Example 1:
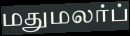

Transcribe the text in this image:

மதுமலர்ப்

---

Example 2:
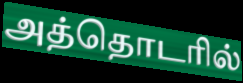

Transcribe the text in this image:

அத்தொடரில்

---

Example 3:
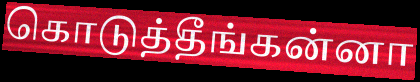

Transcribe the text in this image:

கொடுத்தீங்கன்னா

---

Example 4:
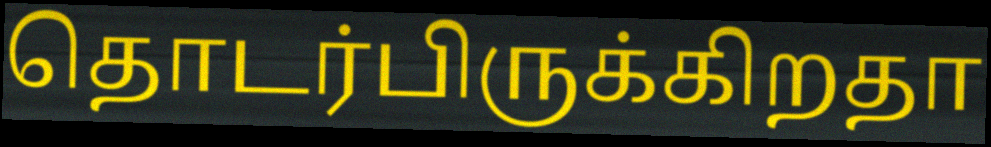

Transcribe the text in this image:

தொடர்பிருக்கிறதா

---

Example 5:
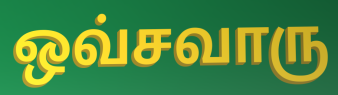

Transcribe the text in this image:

ஒவ்சவாரு